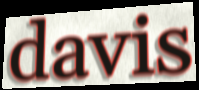
davis